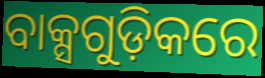
ବାକ୍ସଗୁଡ଼ିକରେ